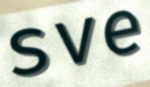
sve